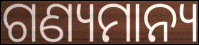
ଗଣ୍ୟମାନ୍ୟ